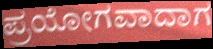
ಪ್ರಯೋಗವಾದಾಗ